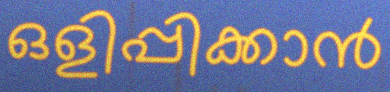
ഒളിപ്പിക്കാൻ